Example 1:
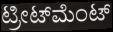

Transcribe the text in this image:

ಟ್ರೀಟ್‌ಮೆಂಟ್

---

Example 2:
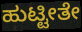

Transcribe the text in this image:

ಹುಟ್ಟೀತೇ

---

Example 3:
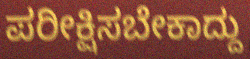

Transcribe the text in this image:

ಪರೀಕ್ಷಿಸಬೇಕಾದ್ದು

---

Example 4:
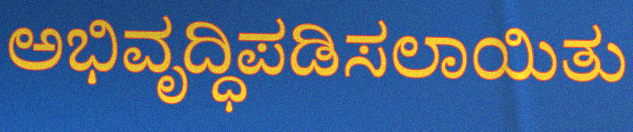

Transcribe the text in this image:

ಅಭಿವೃದ್ಧಿಪಡಿಸಲಾಯಿತು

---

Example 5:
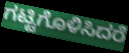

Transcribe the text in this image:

ಗಟ್ಟಿಗೊಳಿಸಿದರೆ